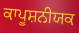
ਕਾਪੂਸ਼ਨੀਯਕ